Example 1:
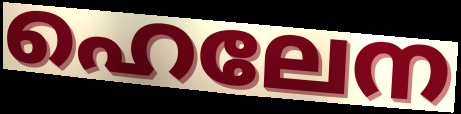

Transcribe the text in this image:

ഹെലേന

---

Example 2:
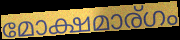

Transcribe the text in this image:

മോക്ഷമാര്ഗം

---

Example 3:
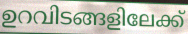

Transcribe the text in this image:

ഉറവിടങ്ങളിലേക്ക്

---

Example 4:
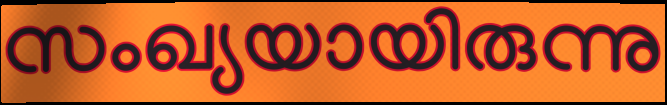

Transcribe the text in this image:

സംഖ്യയായിരുന്നു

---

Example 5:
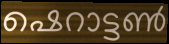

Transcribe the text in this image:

ഷെറാട്ടൺ